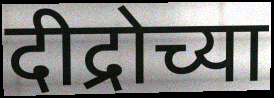
दीद्रोच्या